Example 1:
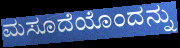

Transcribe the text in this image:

ಮಸೂದೆಯೊಂದನ್ನು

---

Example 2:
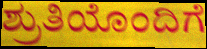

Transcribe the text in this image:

ಶ್ರುತಿಯೊಂದಿಗೆ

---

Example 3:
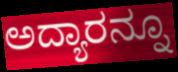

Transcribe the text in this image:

ಅದ್ಯಾರನ್ನೂ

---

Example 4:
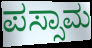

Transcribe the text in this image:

ಪಸ್ಸಾಮ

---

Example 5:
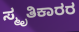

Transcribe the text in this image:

ಸ್ಮೃತಿಕಾರರ